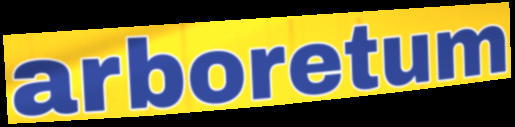
arboretum